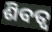
ଶିବତ୍ୱ